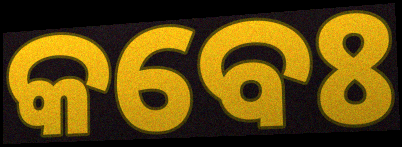
କବେଃ